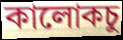
কালোকচু